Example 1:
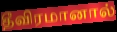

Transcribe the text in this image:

தீவிரமானால்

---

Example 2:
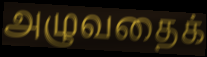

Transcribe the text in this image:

அழுவதைக்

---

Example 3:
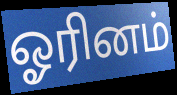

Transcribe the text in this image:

ஓரினம்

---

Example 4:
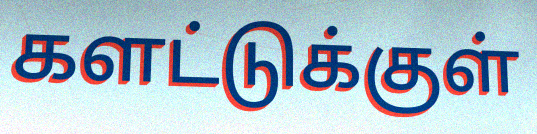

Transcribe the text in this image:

களட்டுக்குள்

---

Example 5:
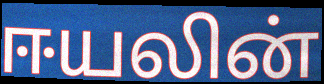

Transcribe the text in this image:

ஈயலின்